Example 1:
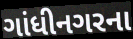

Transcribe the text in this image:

ગાંધીનગરના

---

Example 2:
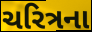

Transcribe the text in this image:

ચરિત્રના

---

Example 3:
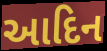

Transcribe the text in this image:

આદિન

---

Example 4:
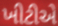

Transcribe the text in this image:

ખીટીએ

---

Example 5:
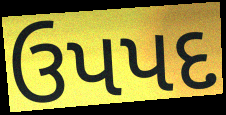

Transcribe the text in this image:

ઉપપદ